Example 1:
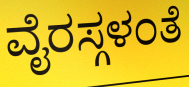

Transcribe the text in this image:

ವೈರಸ್ಗಳಂತೆ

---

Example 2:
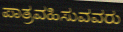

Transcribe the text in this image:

ಪಾತ್ರವಹಿಸುವವರು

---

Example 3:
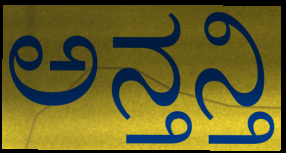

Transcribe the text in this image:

ಅನ್ತನ್ತಿ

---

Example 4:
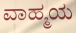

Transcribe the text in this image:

ವಾಹ್ಮಯ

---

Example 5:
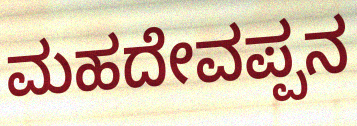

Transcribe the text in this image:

ಮಹದೇವಪ್ಪನ